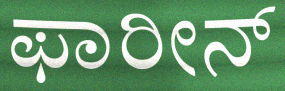
ಫಾರೀನ್